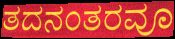
ತದನಂತರವೂ